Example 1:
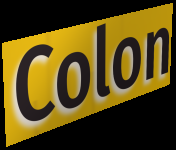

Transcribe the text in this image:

Colon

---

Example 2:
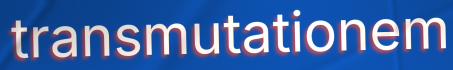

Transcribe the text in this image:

transmutationem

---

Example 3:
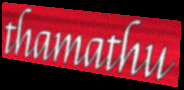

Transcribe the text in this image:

thamathu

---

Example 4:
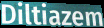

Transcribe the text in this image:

Diltiazem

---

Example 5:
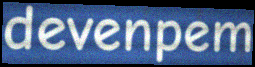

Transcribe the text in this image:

devenpem